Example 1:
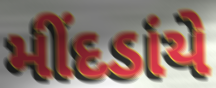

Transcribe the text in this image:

મીંદડાંયે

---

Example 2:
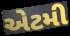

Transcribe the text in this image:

એટમી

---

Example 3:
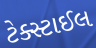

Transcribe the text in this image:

ટેક્સ્ટાઈલ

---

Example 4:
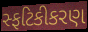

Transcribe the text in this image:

સ્ફટિકીકરણ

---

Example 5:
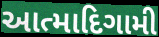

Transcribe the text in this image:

આત્માદિગામી